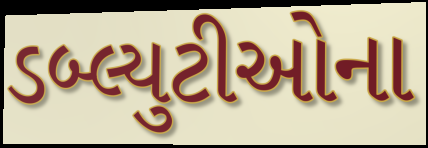
ડબ્લ્યુટીઓના